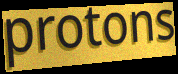
protons